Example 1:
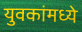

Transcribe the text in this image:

युवकांमध्ये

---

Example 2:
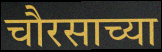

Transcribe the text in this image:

चौरसाच्या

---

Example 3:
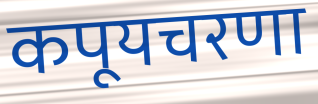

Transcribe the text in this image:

कपूयचरणा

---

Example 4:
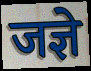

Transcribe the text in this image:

जज्ञे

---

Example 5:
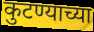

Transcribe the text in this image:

कुटण्याच्या